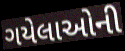
ગયેલાઓની